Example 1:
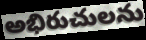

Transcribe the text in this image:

అభిరుచులను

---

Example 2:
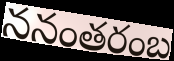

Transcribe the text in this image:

ననంతరంబ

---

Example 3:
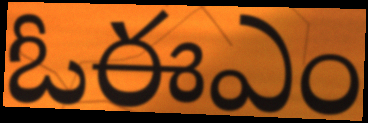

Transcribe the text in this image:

ఓఈఎం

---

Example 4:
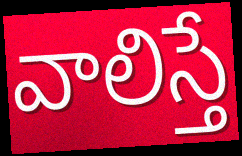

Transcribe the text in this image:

వాలిస్తే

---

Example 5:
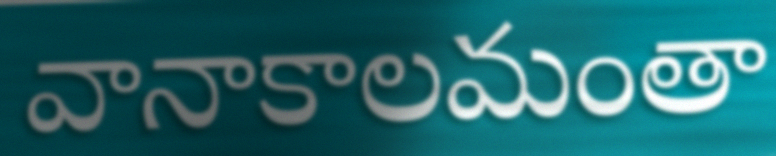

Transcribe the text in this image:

వానాకాలమంతా